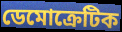
ডেমোক্রেটিক